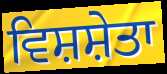
ਵਿਸ਼ਸ਼ੇਤਾ